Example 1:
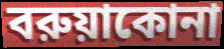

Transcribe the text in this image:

বরুয়াকোনা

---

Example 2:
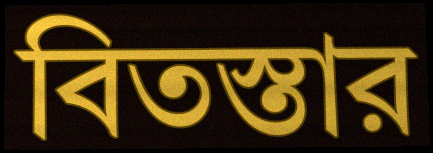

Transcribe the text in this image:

বিতস্তার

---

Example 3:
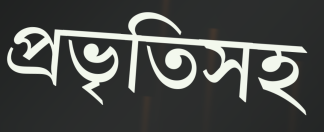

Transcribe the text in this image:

প্রভৃতিসহ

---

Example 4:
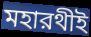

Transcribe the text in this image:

মহারথীই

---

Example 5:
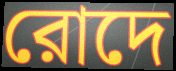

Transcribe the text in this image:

রোদে